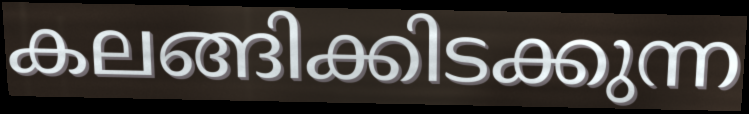
കലങ്ങിക്കിടക്കുന്ന